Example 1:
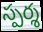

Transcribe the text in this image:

స్పర్శ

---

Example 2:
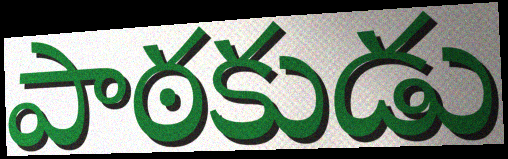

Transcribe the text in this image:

పాఠకుడు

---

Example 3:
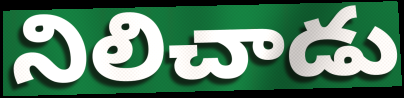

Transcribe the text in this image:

నిలిచాడు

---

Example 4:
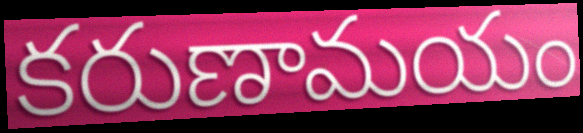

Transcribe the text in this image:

కరుణామయం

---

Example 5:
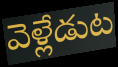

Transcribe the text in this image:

వెళ్లేడుట